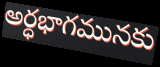
అర్ధభాగమునకు